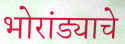
भोरांड्याचे